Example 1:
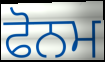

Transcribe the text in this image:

ਫੋਨਮ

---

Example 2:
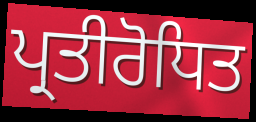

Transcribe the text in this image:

ਪ੍ਰਤੀਰੋਧਿਤ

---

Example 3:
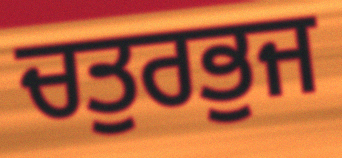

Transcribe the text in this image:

ਚਤੁਰਭੁਜ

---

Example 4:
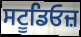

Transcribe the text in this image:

ਸਟੂਡਿਓਜ਼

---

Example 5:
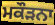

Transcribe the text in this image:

ਮਕੌੜਨਾ